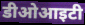
डीओआइटी